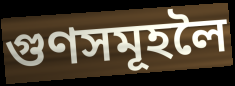
গুণসমূহলৈ